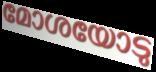
മോശയോടു